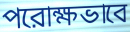
পরোক্ষভাবে